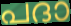
പദാ